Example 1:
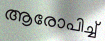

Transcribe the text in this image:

ആരോപിച്ച്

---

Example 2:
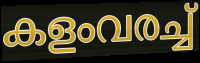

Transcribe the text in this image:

കളംവരച്ച്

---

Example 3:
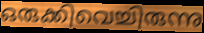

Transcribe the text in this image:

ഒരുക്കിവെച്ചിരുന്നു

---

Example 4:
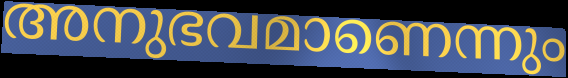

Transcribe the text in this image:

അനുഭവമാണെന്നും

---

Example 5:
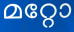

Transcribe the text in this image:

മറ്റോ